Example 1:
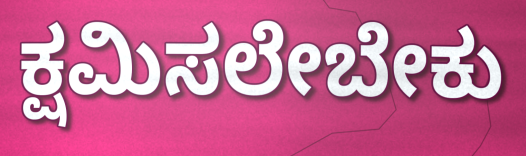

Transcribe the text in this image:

ಕ್ಷಮಿಸಲೇಬೇಕು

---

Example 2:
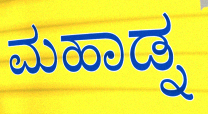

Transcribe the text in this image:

ಮಹಾಡ್ನ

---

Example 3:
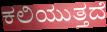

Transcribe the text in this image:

ಕಲಿಯುತ್ತದೆ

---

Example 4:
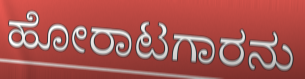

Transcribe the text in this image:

ಹೋರಾಟಗಾರನು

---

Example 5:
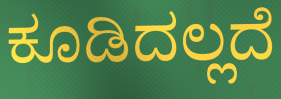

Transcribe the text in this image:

ಕೂಡಿದಲ್ಲದೆ